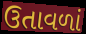
ઉતાવળાં